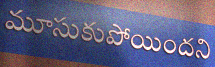
మూసుకుపోయిందని